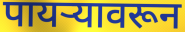
पायऱ्यावरून